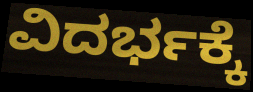
ವಿದರ್ಭಕ್ಕೆ